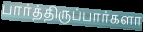
பார்த்திருப்பார்களா